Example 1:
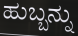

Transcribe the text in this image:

ಹುಬ್ಬನ್ನು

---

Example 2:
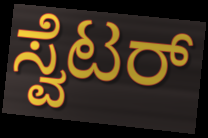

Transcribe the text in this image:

ಸ್ವೆಟರ್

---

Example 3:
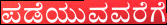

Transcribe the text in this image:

ಪಡೆಯುವವರೆಗೆ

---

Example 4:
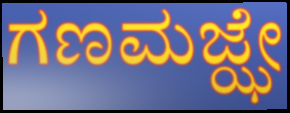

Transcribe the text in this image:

ಗಣಮಜ್ಝೇ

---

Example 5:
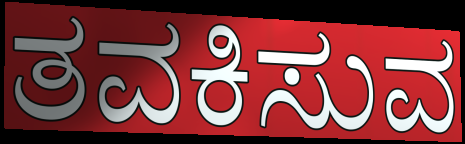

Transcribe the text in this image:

ತವಕಿಸುವ